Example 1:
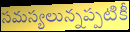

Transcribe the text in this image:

సమస్యలున్నప్పటికీ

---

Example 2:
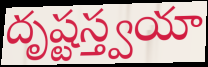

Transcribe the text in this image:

దృష్టస్త్వయా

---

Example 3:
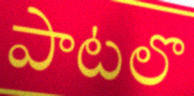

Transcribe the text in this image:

పాటలొ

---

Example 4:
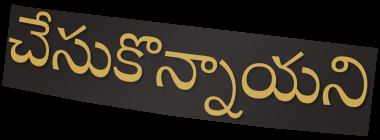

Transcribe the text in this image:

చేసుకొన్నాయని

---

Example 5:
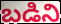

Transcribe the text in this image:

బడిని